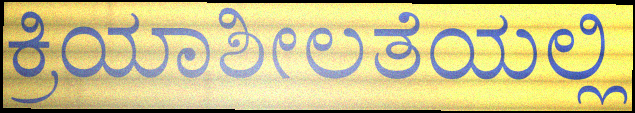
ಕ್ರಿಯಾಶೀಲತೆಯಲ್ಲಿ